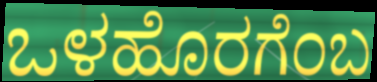
ಒಳಹೊರಗೆಂಬ